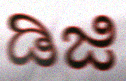
ಡಿಜಿ